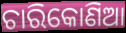
ଚାରିକୋଣିଆ